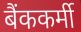
बैंककर्मी